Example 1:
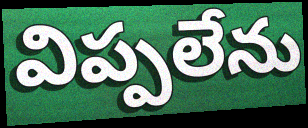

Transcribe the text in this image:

విప్పలేను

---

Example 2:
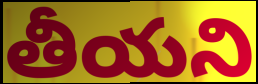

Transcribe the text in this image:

తీయని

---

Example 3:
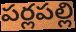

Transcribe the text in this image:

పర్లపల్లి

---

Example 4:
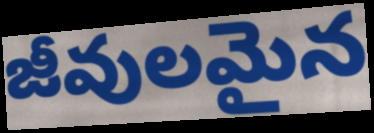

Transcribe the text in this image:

జీవులమైన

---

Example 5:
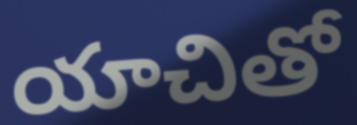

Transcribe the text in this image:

యాచితో